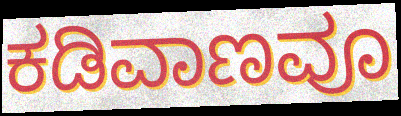
ಕಡಿವಾಣವೂ